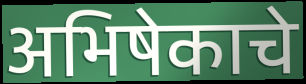
अभिषेकाचे